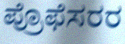
ಪ್ರೊಫೆಸರರ